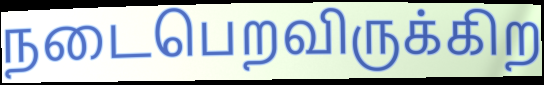
நடைபெறவிருக்கிற